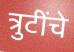
त्रुटींचे